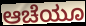
ಆಚೆಯೂ